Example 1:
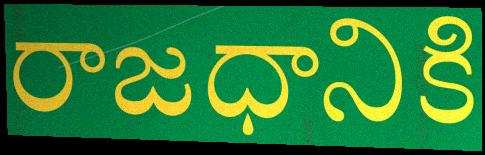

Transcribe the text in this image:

రాజధానికి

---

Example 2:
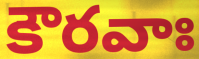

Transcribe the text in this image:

కౌరవాః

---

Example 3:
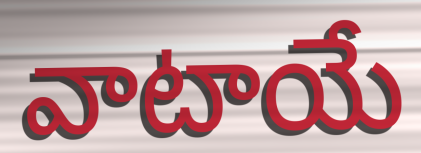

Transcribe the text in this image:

వాటాయే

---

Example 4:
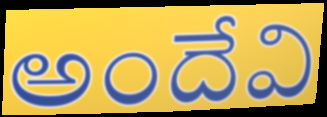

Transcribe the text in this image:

అందేవి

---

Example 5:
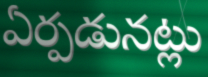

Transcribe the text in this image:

ఏర్పడునట్లు